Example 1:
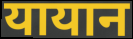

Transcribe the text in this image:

यायान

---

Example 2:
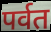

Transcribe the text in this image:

पर्वत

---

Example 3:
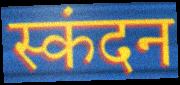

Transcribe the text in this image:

स्कंदन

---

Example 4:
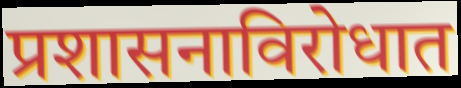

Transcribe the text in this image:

प्रशासनाविरोधात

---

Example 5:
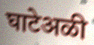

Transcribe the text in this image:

घाटेअळी